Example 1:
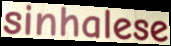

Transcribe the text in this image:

sinhalese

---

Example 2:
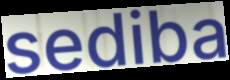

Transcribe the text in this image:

sediba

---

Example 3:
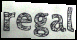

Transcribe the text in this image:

regal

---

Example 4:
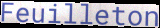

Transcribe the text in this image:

Feuilleton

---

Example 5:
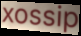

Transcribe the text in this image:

xossip